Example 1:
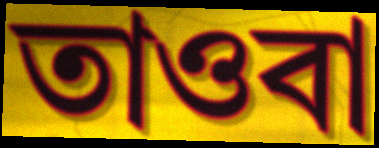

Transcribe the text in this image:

তাওবা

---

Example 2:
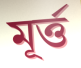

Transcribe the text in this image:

মূর্ত্ত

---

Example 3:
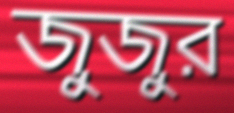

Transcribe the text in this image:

জুজুর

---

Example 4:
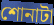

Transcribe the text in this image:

শোনাটা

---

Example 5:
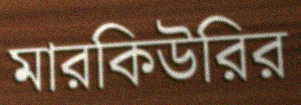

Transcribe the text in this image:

মারকিউরির